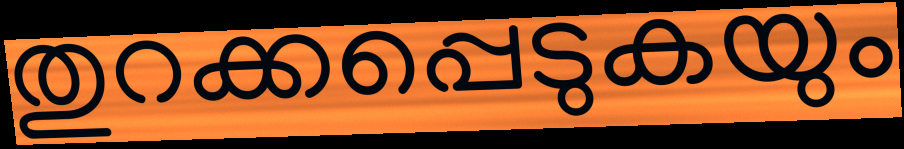
തുറക്കപ്പെടുകയും